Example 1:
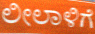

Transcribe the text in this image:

ಲೀಲಾಳಿಗೆ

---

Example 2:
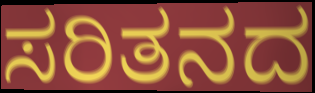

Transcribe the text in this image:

ಸರಿತನದ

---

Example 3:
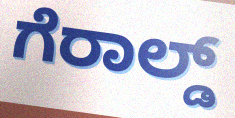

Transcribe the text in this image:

ಗೆರಾಲ್ಡ್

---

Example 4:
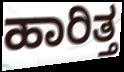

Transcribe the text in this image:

ಹಾರಿತ್ತ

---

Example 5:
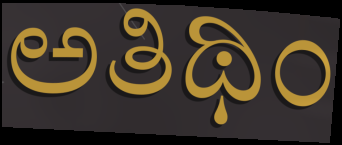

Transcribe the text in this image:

ಅತಿಥಿಂ